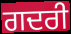
ਗਦਰੀ